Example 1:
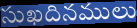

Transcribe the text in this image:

సుఖదినములు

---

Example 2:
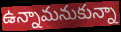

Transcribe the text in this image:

ఉన్నామనుకున్నా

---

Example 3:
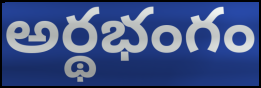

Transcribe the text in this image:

అర్థభంగం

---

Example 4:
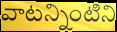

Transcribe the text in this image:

వాటన్నింటిని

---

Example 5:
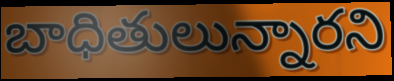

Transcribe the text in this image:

బాధితులున్నారని